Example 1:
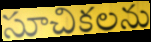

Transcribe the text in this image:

సూచికలను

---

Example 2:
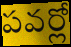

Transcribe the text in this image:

పవర్లో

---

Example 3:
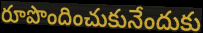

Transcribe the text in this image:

రూపొందించుకునేందుకు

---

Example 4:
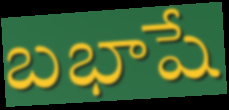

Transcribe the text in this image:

బభాషే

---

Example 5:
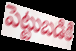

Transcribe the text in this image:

పెట్టుబడికి